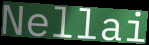
Nellai